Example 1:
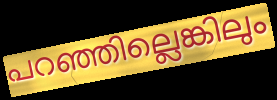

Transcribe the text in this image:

പറഞ്ഞില്ലെങ്കിലും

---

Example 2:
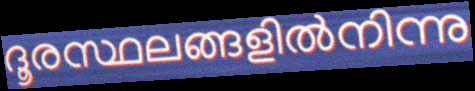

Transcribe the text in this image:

ദൂരസ്ഥലങ്ങളിൽനിന്നു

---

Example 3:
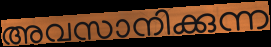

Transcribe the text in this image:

അവസാനിക്കുന്ന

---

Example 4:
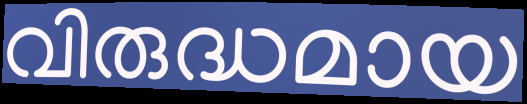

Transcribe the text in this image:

വിരുദ്ധമായ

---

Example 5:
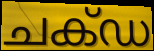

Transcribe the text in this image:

ചക്ഡ